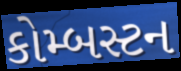
કોમ્બસ્ટન